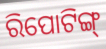
ରିପୋଟିଙ୍ଗ୍